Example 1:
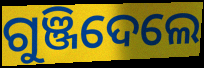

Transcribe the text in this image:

ଗୁଞ୍ଜିଦେଲେ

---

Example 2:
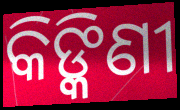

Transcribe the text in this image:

କିଙ୍କିଣୀ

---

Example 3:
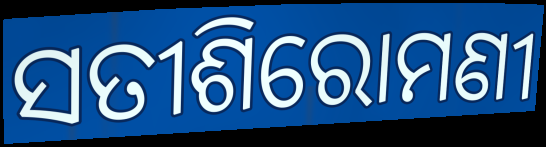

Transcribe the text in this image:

ସତୀଶିରୋମଣୀ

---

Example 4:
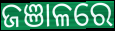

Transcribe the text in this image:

ଜଞାଳରେ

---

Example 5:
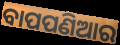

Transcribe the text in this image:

ବାପପଣିଆର